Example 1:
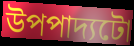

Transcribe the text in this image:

উপপাদ্যটো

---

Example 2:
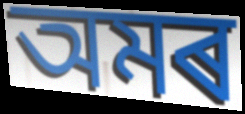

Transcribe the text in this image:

অমৰ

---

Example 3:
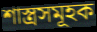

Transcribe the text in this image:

শাস্ত্ৰসমূহক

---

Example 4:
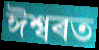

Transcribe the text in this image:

ঈশ্বৰত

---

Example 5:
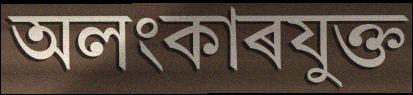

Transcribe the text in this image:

অলংকাৰযুক্ত